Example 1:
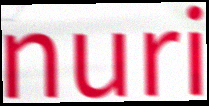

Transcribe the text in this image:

nuri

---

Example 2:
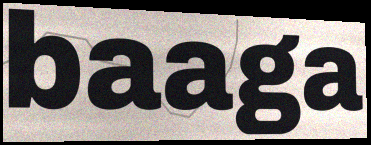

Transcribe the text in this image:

baaga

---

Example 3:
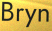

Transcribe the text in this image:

Bryn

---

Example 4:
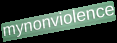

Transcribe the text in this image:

mynonviolence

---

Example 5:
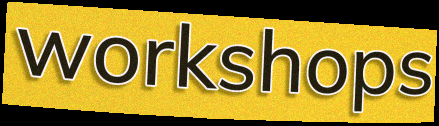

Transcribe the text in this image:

workshops